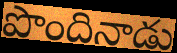
పొందినాడు